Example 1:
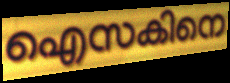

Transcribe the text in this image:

ഐസകിനെ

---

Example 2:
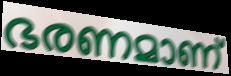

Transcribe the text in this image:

ഭരണമാണ്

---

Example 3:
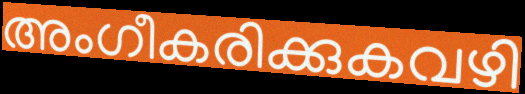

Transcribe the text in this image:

അംഗീകരിക്കുകവഴി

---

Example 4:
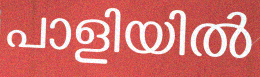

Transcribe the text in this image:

പാളിയിൽ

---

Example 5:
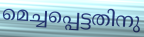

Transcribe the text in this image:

മെച്ചപ്പെട്ടതിനു